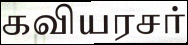
கவியரசர்